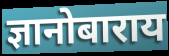
ज्ञानोबाराय